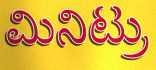
ಮಿನಿಟ್ರು